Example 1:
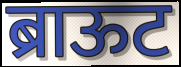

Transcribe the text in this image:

ब्राऊट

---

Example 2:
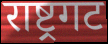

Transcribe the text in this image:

राष्ट्रगट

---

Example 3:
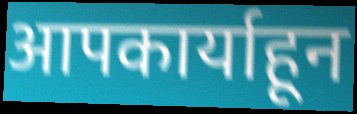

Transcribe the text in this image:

आपकार्याहून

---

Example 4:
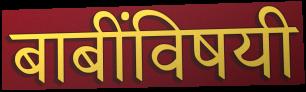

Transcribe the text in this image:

बाबींविषयी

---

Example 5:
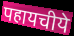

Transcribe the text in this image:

पहायचीये